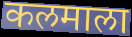
कलमाला